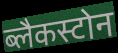
ब्लैकस्टोन